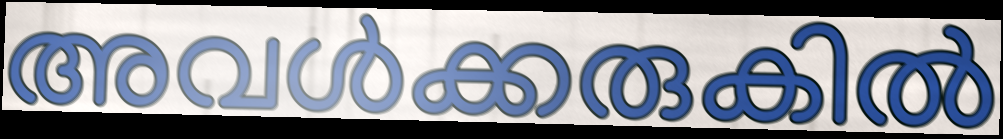
അവൾക്കരുകിൽ